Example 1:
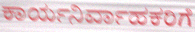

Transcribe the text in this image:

ಕಾರ್ಯನಿರ್ವಾಹಕರಿಗೆ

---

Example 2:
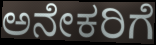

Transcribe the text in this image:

ಅನೇಕರಿಗೆ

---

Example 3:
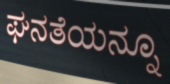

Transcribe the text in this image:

ಘನತೆಯನ್ನೂ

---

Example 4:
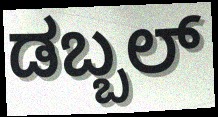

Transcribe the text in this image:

ಡಬ್ಬಲ್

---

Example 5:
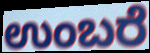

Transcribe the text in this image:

ಉಂಬರೆ